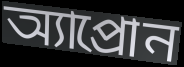
অ্যাপ্রোন